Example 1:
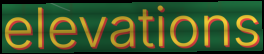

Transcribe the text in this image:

elevations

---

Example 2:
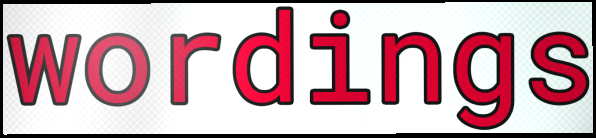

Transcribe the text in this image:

wordings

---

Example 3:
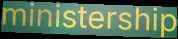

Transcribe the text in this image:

ministership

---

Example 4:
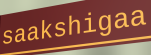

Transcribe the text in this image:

saakshigaa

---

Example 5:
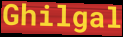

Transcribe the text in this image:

Ghilgal